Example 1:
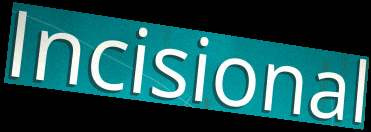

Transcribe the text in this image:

Incisional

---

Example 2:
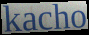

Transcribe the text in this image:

kacho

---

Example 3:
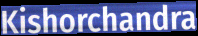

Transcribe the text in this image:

Kishorchandra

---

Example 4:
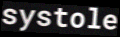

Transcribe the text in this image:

systole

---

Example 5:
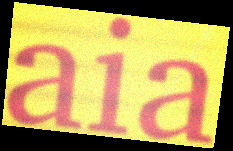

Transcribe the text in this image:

aia